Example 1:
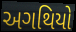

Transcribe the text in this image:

અગથિયો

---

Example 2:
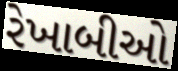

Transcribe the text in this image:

રેખાબીઓ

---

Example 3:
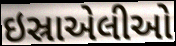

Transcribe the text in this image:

ઇસ્રાએલીઓ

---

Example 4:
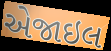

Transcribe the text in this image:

એજાઇલ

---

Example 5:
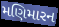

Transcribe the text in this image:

મણિમારન